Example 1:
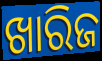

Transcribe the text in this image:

ଖାରିଜ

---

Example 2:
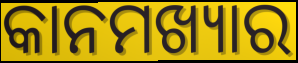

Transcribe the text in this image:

କାନମଖ୍ୟାର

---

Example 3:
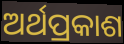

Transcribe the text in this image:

ଅର୍ଥପ୍ରକାଶ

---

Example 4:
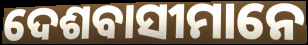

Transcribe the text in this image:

ଦେଶବାସୀମାନେ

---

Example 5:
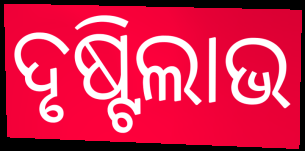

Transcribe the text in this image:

ଦୃଷ୍ଟିଲାଭ